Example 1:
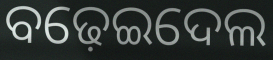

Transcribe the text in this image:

ବଢ଼େଇଦେଲ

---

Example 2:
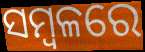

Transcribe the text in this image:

ସମ୍ବଳରେ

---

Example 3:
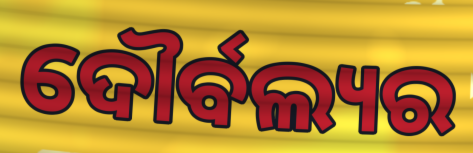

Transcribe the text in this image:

ଦୌର୍ବଲ୍ୟର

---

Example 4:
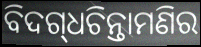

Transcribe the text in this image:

ବିଦଗ୍‌ଧଚିନ୍ତାମଣିର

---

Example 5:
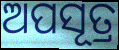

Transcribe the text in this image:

ଅପସୂତ୍ର